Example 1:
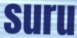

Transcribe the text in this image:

suru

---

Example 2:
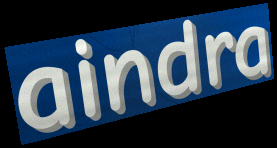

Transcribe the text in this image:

aindra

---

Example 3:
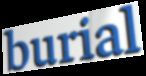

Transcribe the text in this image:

burial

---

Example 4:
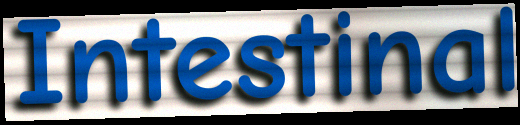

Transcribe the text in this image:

Intestinal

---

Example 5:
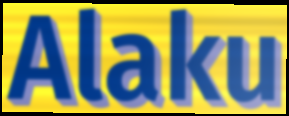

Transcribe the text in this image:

Alaku